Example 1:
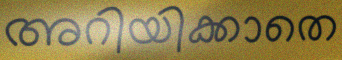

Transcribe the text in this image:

അറിയിക്കാതെ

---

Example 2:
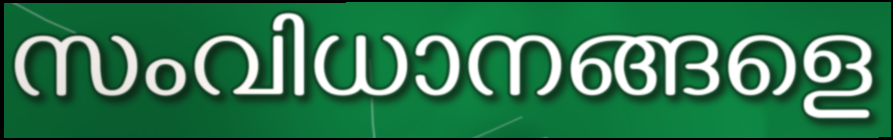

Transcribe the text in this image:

സംവിധാനങ്ങളെ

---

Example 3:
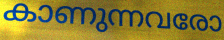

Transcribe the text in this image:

കാണുന്നവരോ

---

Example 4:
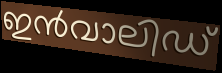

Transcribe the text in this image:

ഇൻവാലിഡ്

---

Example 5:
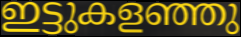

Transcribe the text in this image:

ഇട്ടുകളഞ്ഞു